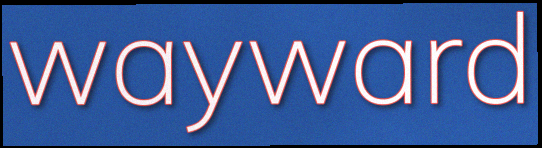
wayward